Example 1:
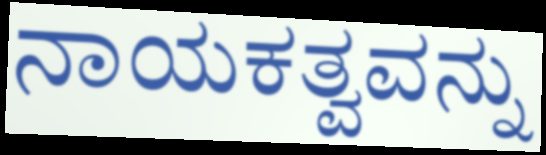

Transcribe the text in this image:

ನಾಯಕತ್ವವನ್ನು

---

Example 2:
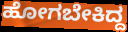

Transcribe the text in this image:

ಹೋಗಬೇಕಿದ್ದ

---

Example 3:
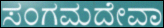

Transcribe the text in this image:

ಸಂಗಮದೇವಾ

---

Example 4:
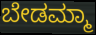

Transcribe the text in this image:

ಬೇಡಮ್ಮಾ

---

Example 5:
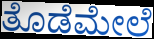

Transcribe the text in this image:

ತೊಡೆಮೇಲೆ